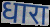
धारा